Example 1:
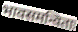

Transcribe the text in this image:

भावसमन्विताः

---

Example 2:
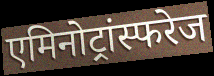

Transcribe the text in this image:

एमिनोट्रांस्फरेज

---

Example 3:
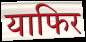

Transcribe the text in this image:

याफिर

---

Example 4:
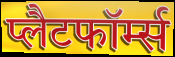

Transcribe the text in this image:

प्लैटफॉर्म्स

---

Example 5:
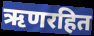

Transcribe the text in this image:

ऋणरहित